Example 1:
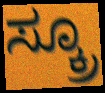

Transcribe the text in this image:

ಸ್ಕ್ರೂ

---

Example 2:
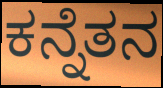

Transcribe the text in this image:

ಕನ್ನೆತನ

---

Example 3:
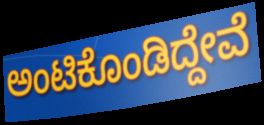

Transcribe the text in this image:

ಅಂಟಿಕೊಂಡಿದ್ದೇವೆ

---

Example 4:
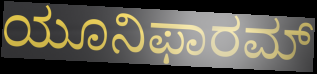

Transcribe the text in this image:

ಯೂನಿಫಾರಮ್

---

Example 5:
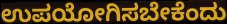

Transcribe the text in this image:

ಉಪಯೋಗಿಸಬೇಕೆಂದು